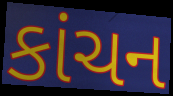
કાંચન